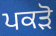
ਪਕੜੋ